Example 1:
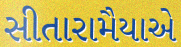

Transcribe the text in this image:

સીતારામૈયાએ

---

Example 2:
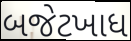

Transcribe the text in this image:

બજેટખાધ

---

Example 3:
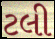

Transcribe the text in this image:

ટલી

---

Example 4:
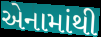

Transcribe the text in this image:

એનામાંથી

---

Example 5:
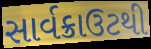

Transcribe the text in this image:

સાર્વક્રાઉટથી